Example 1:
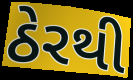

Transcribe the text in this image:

ઠેરથી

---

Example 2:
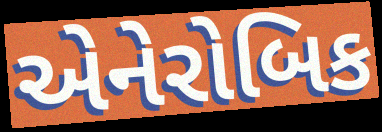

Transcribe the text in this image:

એનેરોબિક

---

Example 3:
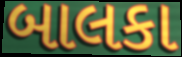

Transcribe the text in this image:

બાલકા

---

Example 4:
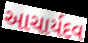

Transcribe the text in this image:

આચાર્યદવ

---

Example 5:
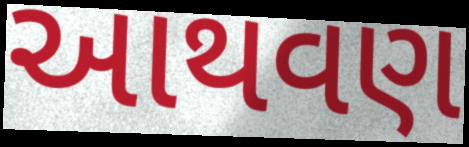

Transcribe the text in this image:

આથવણ